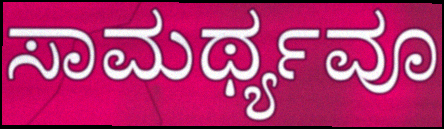
ಸಾಮರ್ಥ್ಯವೂ